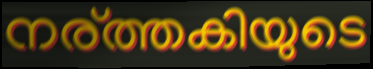
നര്ത്തകിയുടെ